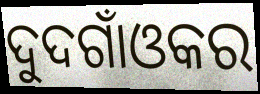
ଦୁଦଗାଁଓକର